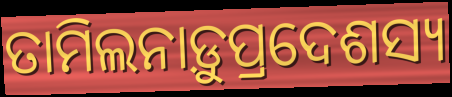
ତାମିଲନାଡ଼ୁପ୍ରଦେଶସ୍ୟ